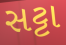
સટ્ટા